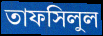
তাফসিলুল